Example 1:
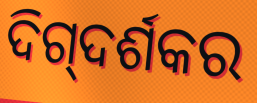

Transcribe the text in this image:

ଦିଗ୍‍ଦର୍ଶକର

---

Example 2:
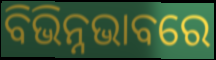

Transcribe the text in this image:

ବିଭିନ୍ନଭାବରେ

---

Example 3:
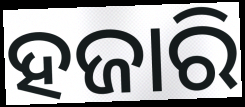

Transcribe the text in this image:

ହଜାରି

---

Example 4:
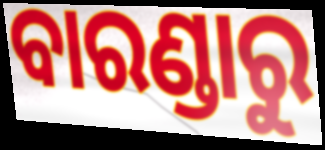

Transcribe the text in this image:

ବାରଣ୍ଡାରୁ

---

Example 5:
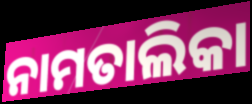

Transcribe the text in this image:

ନାମତାଲିକା